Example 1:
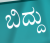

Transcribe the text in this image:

ಬಿದ್ದು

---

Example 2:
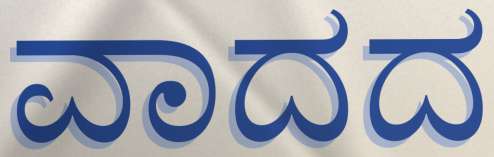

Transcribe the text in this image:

ವಾದದ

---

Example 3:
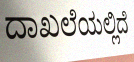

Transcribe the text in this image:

ದಾಖಲೆಯಲ್ಲಿದೆ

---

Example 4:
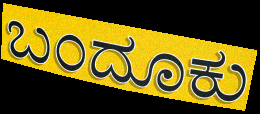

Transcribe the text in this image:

ಬಂದೂಕು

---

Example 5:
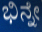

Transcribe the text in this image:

ಭಿನ್ನೇ